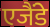
एजैंडे